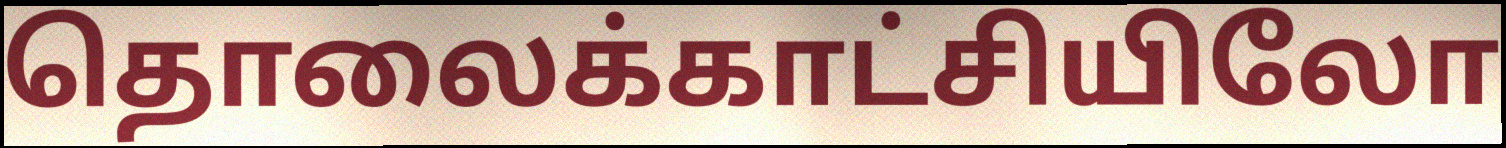
தொலைக்காட்சியிலோ